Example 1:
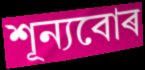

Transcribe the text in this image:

শূন্যবোৰ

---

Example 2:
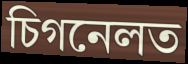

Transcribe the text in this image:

চিগনেলত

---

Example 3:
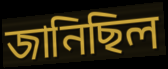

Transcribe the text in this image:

জানিছিল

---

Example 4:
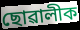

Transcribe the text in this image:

ছোৱালীক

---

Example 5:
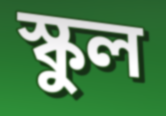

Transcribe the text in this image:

স্কুল